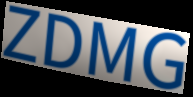
ZDMG